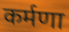
कर्मणा